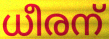
ധീരന്